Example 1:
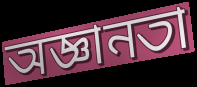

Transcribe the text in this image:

অজ্ঞানতা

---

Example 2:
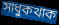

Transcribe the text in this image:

সাধুকথাক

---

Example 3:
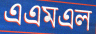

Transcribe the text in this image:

এএমএল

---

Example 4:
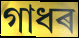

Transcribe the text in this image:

গাধৰ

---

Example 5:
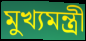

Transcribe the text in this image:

মুখ্যমন্ত্ৰী